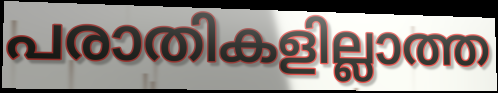
പരാതികളില്ലാത്ത